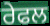
ਰੇਫਲ